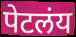
पेटलंय